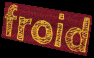
froid